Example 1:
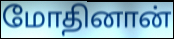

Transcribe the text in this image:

மோதினான்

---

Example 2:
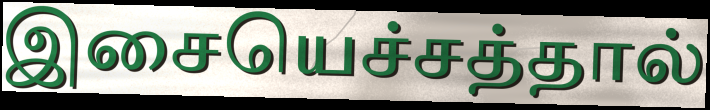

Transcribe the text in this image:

இசையெச்சத்தால்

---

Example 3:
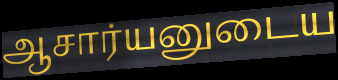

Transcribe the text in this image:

ஆசார்யனுடைய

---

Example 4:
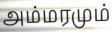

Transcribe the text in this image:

அம்மரமும்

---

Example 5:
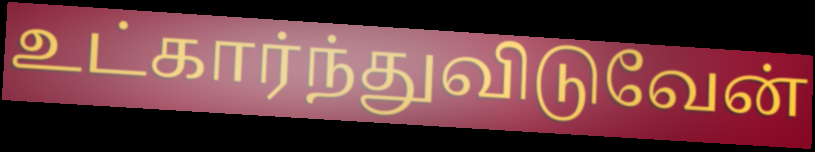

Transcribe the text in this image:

உட்கார்ந்துவிடுவேன்